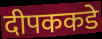
दीपककडे